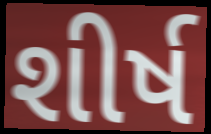
શીર્ષ